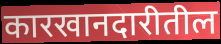
कारखानदारीतील